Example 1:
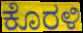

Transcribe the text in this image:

ಕೊರಳಿ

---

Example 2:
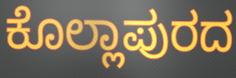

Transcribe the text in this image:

ಕೊಲ್ಲಾಪುರದ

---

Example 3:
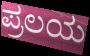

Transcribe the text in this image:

ಪ್ರಲಯ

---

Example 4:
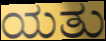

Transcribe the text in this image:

ಯತು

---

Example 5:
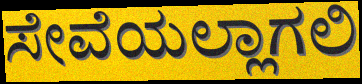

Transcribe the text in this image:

ಸೇವೆಯಲ್ಲಾಗಲಿ